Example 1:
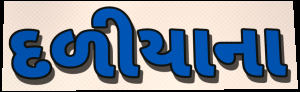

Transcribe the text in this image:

દળીયાના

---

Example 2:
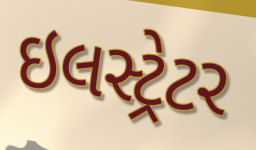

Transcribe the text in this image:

ઇલસ્ટ્રેટર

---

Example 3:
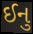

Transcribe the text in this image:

ઈનુ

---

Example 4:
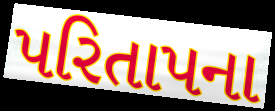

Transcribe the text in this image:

પરિતાપના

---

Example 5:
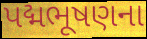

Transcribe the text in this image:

પદ્મભૂષણના